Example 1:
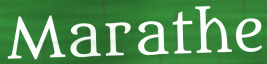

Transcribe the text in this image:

Marathe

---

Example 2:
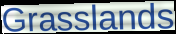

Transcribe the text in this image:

Grasslands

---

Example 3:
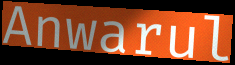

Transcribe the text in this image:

Anwarul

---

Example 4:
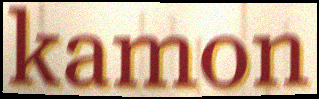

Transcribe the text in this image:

kamon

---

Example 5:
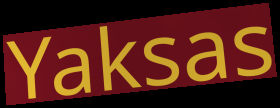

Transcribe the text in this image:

Yaksas